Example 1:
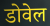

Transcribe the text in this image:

डोवेल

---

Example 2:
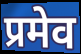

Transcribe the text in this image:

प्रमेव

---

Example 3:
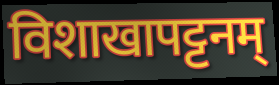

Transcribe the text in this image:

विशाखापट्टनम्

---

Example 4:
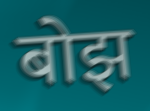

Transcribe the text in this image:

बोझ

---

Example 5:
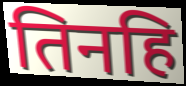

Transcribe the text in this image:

तिनहि